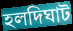
হলদিঘাট